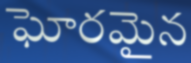
ఘోరమైన